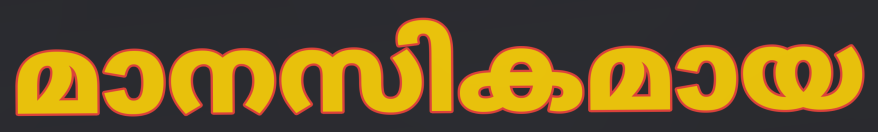
മാനസികമായ